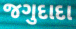
જગુદાદા